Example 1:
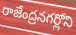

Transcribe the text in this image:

రాజేంద్రనగర్లోని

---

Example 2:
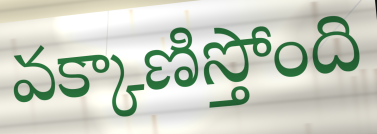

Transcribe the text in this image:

వక్కాణిస్తోంది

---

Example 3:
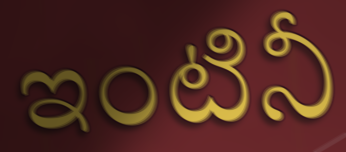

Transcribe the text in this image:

ఇంటినీ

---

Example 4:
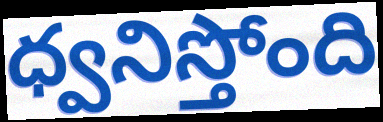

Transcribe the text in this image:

ధ్వనిస్తోంది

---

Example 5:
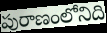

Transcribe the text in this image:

పురాణంలోనిది